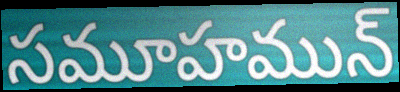
సమూహమున్